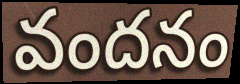
వందనం